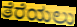
ತೆರೆಯಲು